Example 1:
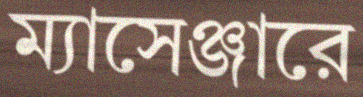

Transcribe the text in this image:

ম্যাসেঞ্জারে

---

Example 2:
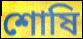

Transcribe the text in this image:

শোষি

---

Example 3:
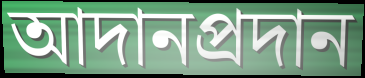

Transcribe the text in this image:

আদানপ্রদান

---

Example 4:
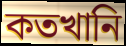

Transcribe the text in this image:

কতখানি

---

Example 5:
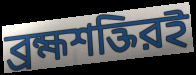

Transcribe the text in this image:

ব্রহ্মশক্তিরই